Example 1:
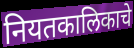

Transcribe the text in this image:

नियतकालिकाचे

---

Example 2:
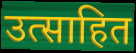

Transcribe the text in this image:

उत्साहित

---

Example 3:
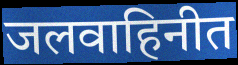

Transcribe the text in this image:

जलवाहिनीत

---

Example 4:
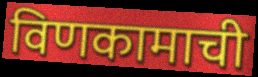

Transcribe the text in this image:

विणकामाची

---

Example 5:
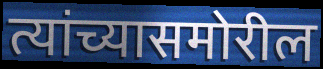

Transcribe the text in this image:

त्यांच्यासमोरील